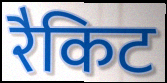
रैकिट